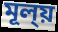
মূল্য়